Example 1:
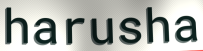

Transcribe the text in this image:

harusha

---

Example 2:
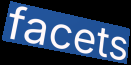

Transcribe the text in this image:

facets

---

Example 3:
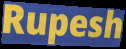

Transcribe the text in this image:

Rupesh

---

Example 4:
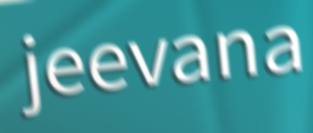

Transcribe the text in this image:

jeevana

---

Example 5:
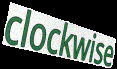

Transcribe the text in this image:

clockwise